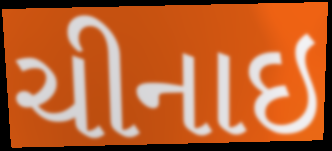
ચીનાઇ